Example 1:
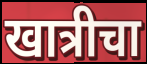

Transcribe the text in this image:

खात्रीचा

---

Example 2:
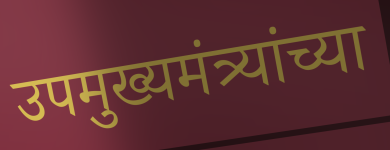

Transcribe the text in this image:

उपमुख्यमंत्र्यांच्या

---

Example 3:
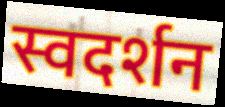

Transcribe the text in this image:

स्वदर्शन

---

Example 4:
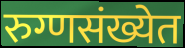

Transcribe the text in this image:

रुग्णसंख्येत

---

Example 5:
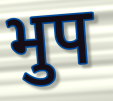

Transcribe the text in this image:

भुप